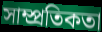
সাম্প্রতিকতা